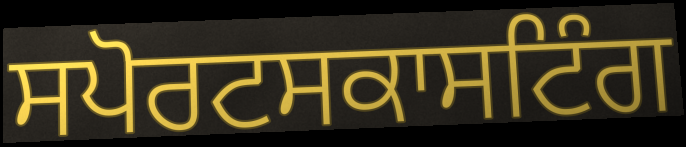
ਸਪੋਰਟਸਕਾਸਟਿੰਗ